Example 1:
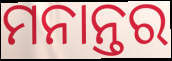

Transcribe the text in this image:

ମନାନ୍ତର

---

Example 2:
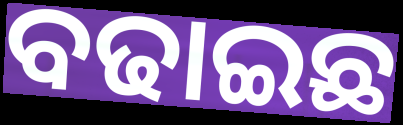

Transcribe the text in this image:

ବଢାଇଛ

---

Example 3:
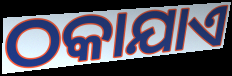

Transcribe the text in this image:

ଠକାଯାଏ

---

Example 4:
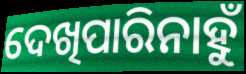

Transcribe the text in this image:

ଦେଖିପାରିନାହୁଁ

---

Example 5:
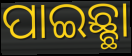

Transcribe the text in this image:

ପାଇଛ୍ଛା